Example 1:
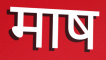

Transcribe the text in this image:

माष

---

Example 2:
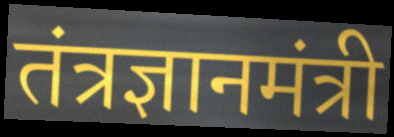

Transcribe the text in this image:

तंत्रज्ञानमंत्री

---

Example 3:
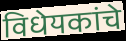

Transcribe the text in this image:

विधेयकांचे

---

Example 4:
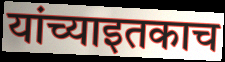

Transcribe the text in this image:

यांच्याइतकाच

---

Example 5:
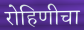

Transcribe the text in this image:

रोहिणीचा